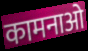
कामनाओ